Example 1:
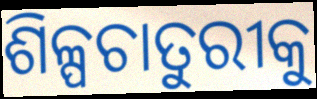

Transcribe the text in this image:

ଶିଳ୍ପଚାତୁରୀକୁ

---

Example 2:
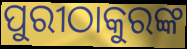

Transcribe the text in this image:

ପୁରୀଠାକୁରଙ୍କ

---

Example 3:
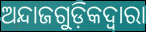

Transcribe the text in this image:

ଅନ୍ଦାଜଗୁଡ଼ିକଦ୍ୱାରା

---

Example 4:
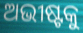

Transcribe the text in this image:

ଅଭୀଷ୍ଟକୁ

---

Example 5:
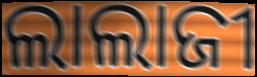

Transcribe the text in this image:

ଲାଲାଜୀ